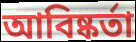
আবিষ্কর্তা